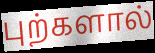
புற்களால்